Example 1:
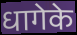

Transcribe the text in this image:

धागेके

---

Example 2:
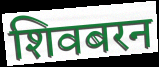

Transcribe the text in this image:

शिवबरन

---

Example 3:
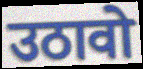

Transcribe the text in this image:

उठावो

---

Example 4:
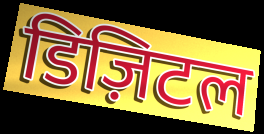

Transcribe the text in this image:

डिज़िटल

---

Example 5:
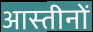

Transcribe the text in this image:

आस्तीनों